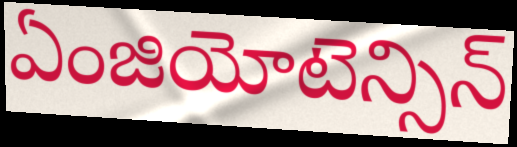
ఏంజియోటెన్సిన్